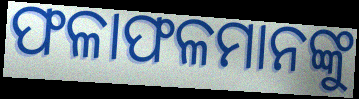
ଫଳାଫଳମାନଙ୍କୁ